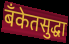
बँकेतसुद्धा